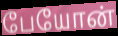
பேயோன்